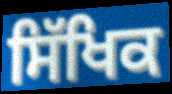
ਸਿੱਖਿਕ